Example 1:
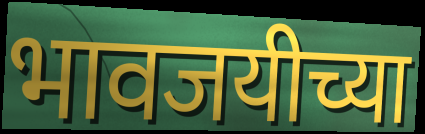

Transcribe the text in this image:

भावजयीच्या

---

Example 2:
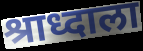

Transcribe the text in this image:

श्राध्दाला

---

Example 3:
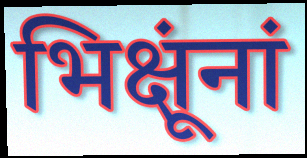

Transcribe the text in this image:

भिक्षूंनां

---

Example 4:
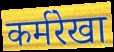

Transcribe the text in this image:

कर्मरेखा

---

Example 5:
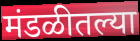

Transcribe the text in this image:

मंडळीतल्या